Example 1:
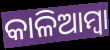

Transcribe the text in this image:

କାଳିଆମ୍ବା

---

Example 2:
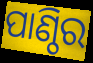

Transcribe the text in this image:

ପାଣ୍ଠିର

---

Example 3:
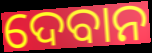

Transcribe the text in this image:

ଦେବାନ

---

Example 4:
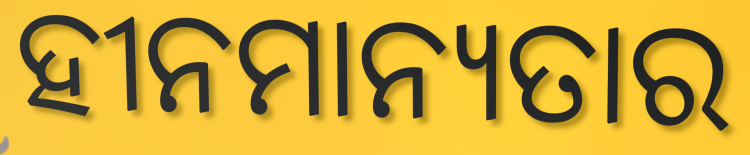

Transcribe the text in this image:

ହୀନମାନ୍ୟତାର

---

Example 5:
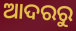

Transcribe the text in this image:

ଆଦରରୁ